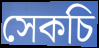
সেকচি